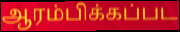
ஆரம்பிக்கப்பட